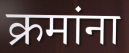
क्रमांना